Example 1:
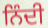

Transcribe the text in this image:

ਨਿੰਦੀ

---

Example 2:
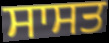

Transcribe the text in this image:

ਸਾਸਤ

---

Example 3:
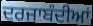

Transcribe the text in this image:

ਦਰਜਾਬੰਦੀਆਂ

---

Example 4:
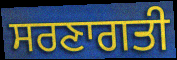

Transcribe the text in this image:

ਸਰਣਾਗਤੀ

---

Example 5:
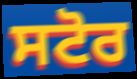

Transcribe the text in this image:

ਸਟੋਰ